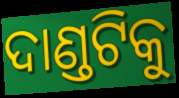
ଦାଣ୍ଡଟିକୁ